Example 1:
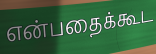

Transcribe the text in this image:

என்பதைக்கூட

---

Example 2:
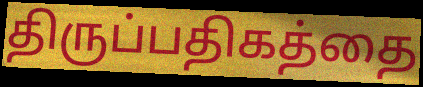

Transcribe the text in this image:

திருப்பதிகத்தை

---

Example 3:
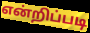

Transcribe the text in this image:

என்றிப்படி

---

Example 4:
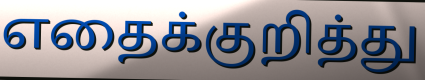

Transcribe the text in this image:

எதைக்குறித்து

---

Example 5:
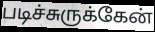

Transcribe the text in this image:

படிச்சுருக்கேன்